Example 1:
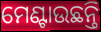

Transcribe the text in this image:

ମେଣ୍ଟାଉଛନ୍ତି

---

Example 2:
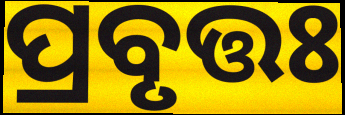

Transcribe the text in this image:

ପ୍ରବୃତ୍ତଃ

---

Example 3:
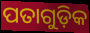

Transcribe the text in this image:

ପତାଗୁଡ଼ିକ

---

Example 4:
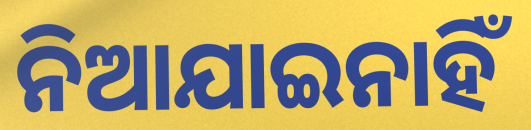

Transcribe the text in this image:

ନିଆଯାଇନାହିଁ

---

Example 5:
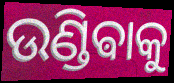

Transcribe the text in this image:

ଉଣ୍ଡିଵାକୁ